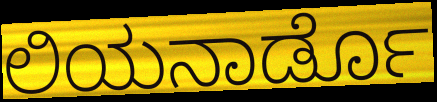
ಲಿಯನಾರ್ಡೊ